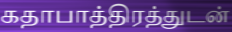
கதாபாத்திரத்துடன்